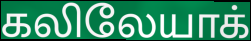
கலிலேயாக்